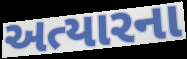
અત્યારના